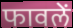
फावलें